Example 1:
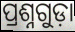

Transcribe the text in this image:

ପ୍ରଶ୍ନଗୁଡ଼ା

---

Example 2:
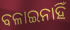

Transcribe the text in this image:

ବଳାଇନାହିଁ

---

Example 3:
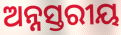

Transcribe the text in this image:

ଅନ୍ନସ୍ତରୀୟ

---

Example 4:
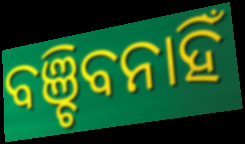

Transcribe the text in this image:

ବଞ୍ଚିବନାହିଁ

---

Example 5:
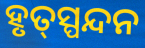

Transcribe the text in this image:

ହୃତ୍‍ସ୍ପନ୍ଦନ